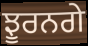
ਝੂਰਨਗੇ